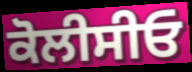
ਕੋਲੀਸੀਓ